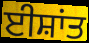
ਈਸ਼ਾਂਤ